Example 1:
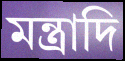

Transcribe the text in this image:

মন্ত্রাদি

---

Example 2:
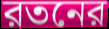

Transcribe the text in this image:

রতনের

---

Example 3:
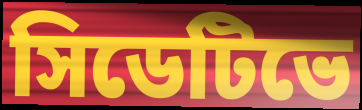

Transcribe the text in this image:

সিডেটিভে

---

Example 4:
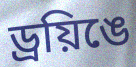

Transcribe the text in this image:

ড্রয়িঙে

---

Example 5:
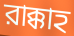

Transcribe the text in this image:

রাক্কাহ